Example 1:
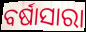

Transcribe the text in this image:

ବର୍ଷାସାରା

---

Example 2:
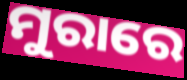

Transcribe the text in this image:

ମୁରାରେ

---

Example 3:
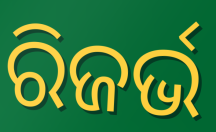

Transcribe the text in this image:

ରିଜର୍ଭ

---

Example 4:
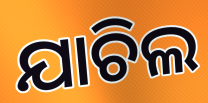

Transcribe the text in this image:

ଯାଚିଲ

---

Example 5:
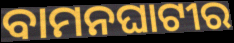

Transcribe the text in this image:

ବାମନଘାଟୀର